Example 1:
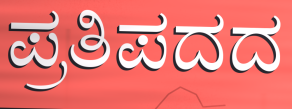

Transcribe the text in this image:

ಪ್ರತಿಪದದ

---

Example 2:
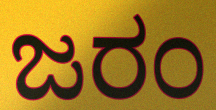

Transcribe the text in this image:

ಜರಂ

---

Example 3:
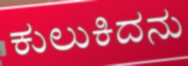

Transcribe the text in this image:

ಕುಲುಕಿದನು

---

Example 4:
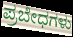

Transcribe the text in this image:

ಪ್ರಬೇಧಗಳು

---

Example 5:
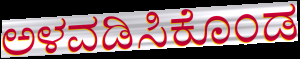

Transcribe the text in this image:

ಅಳವಡಿಸಿಕೊಂಡ